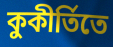
কুকীর্তিতে